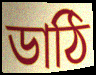
ডাঠি